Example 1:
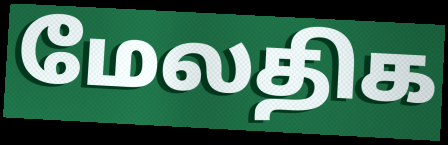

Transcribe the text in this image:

மேலதிக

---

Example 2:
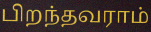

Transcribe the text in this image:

பிறந்தவராம்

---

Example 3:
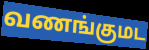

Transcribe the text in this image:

வணங்குமட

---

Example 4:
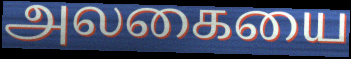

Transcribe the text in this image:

அலகையை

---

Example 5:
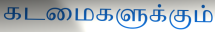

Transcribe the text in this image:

கடமைகளுக்கும்